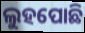
ଲୁହପୋଛି